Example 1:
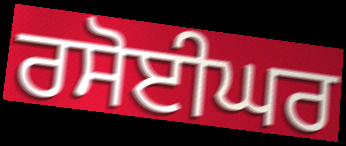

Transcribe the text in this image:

ਰਸੋਈਘਰ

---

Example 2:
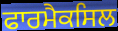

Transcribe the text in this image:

ਫਾਰਮੈਕਸਿਲ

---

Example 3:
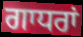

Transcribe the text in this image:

ਗਾਧਰਾਂ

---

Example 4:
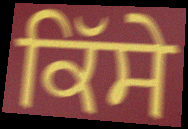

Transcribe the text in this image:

ਕਿੱਸੇ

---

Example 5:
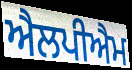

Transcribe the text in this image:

ਐਲਪੀਐਮ